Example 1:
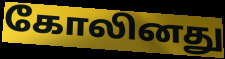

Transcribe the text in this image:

கோலினது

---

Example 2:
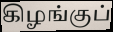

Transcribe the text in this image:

கிழங்குப்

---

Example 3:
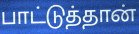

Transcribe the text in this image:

பாட்டுத்தான்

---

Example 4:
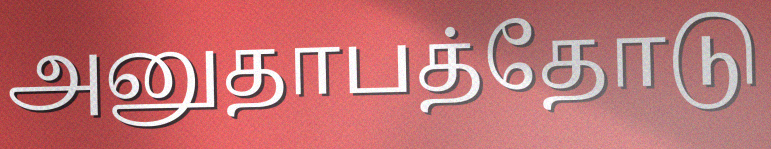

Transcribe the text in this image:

அனுதாபத்தோடு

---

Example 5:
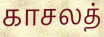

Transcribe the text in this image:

காசலத்